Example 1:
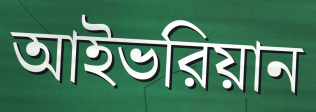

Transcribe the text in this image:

আইভরিয়ান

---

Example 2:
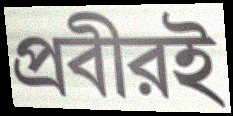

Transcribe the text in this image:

প্রবীরই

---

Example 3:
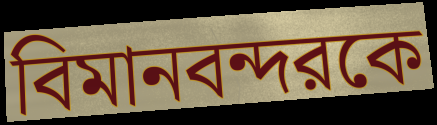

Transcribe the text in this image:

বিমানবন্দরকে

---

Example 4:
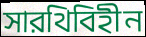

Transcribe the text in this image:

সারথিবিহীন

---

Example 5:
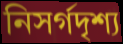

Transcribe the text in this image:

নিসর্গদৃশ্য